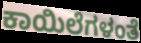
ಕಾಯಿಲೆಗಳಂತೆ